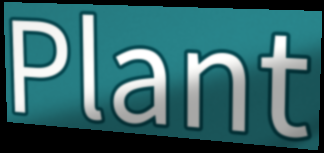
Plant